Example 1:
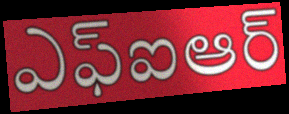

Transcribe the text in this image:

ఎఫ్ఐఆర్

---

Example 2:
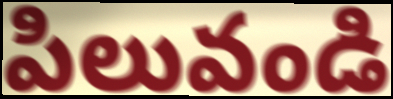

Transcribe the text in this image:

పిలువండి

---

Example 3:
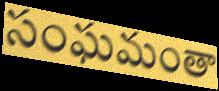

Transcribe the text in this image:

సంఘమంతా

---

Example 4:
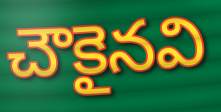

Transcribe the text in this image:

చౌకైనవి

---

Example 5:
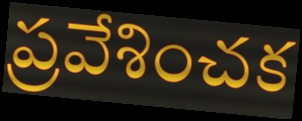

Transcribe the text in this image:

ప్రవేశించక